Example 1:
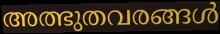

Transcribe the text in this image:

അത്ഭുതവരങ്ങൾ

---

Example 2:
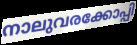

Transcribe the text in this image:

നാലുവരക്കോപ്പി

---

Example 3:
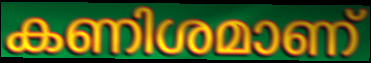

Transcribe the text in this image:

കണിശമാണ്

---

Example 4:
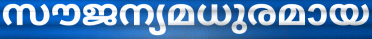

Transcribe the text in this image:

സൗജന്യമധുരമായ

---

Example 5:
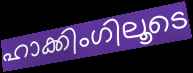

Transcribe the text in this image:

ഹാക്കിംഗിലൂടെ